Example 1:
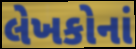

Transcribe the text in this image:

લેખકોનાં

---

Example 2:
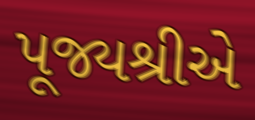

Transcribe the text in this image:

પૂજ્યશ્રીએ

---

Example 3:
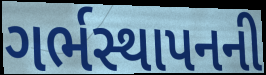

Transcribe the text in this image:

ગર્ભસ્થાપનની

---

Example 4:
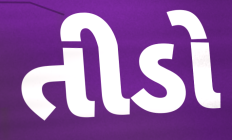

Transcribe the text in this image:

તીડો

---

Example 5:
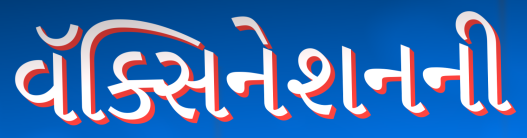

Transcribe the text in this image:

વૅક્સિનેશનની